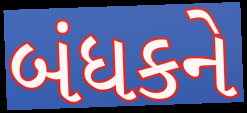
બંધકને